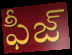
ఫీజ్